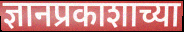
ज्ञानप्रकाशाच्या